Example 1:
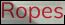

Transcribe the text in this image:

Ropes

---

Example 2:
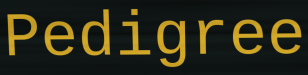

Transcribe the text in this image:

Pedigree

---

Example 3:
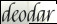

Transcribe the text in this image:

deodar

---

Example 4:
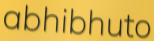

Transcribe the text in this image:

abhibhuto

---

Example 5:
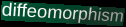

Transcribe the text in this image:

diffeomorphism